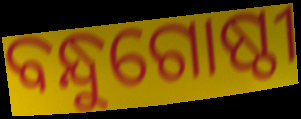
ବନ୍ଧୁଗୋଷ୍ଠୀ